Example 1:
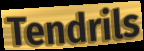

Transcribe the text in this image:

Tendrils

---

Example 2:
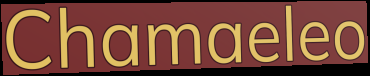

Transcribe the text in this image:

Chamaeleo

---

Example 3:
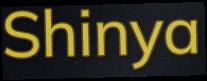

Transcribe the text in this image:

Shinya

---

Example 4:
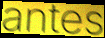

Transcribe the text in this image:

antes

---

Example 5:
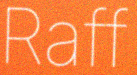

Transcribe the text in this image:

Raff